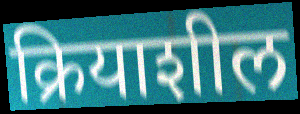
क्रियाशील